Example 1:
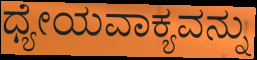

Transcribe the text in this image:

ಧ್ಯೇಯವಾಕ್ಯವನ್ನು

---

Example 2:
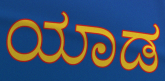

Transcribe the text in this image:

ಯಾಡ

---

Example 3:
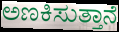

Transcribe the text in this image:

ಅಣಕಿಸುತ್ತಾನೆ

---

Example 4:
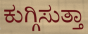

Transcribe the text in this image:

ಕುಗ್ಗಿಸುತ್ತಾ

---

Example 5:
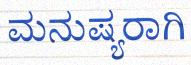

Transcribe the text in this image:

ಮನುಷ್ಯರಾಗಿ